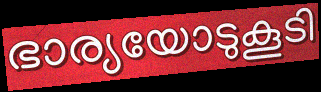
ഭാര്യയോടുകൂടി